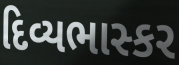
દિવ્યભાસ્કર